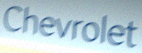
Chevrolet